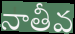
నాతీవ